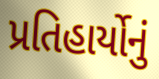
પ્રતિહાર્યોનું